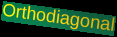
Orthodiagonal